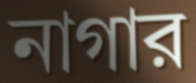
নাগার